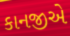
કાનજીએ